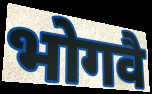
भोगवै